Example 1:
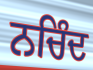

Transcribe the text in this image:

ਨਚਿੰਦ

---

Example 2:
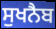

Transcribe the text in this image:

ਸੁਖਨੈਬ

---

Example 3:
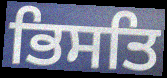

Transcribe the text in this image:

ਭਿਸਤਿ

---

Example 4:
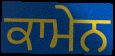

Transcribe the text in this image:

ਕਾਮੇਨ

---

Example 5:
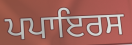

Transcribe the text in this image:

ਪਪਾਇਰਸ